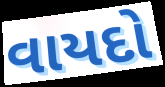
વાયદો